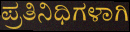
ಪ್ರತಿನಿಧಿಗಳಾಗಿ